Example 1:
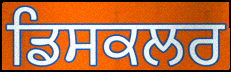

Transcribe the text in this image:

ਡਿਸਕਲਰ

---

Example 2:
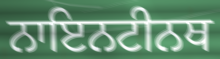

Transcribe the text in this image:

ਨਾਇਨਟੀਨਥ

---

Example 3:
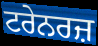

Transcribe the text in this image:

ਟਰੇਨਰਜ਼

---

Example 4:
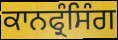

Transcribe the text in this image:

ਕਾਨਫ੍ਰੰਸਿੰਗ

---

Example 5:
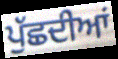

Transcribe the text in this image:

ਪੁੱਛਦੀਆਂ